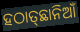
ହଠାତ୍‌ଛାନିଆଁ